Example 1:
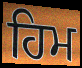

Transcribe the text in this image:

ਹਿਮ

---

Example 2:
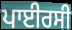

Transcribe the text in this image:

ਪਾਈਰਸੀ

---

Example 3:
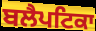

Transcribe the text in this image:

ਬਲੈਪਟਿਕਾ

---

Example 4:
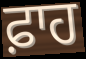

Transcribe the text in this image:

ਫ਼ਾਹ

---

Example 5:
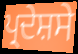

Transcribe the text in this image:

ਪ੍ਰਦੇਸ਼ਸੇ